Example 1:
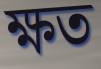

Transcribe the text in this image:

ক্ষত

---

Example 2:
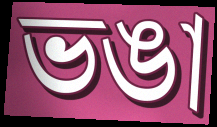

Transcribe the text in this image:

ভঙা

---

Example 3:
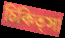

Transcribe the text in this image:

চিকিত্সা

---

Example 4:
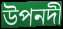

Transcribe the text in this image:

উপনদী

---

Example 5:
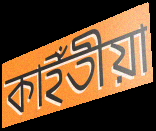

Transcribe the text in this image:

কাইঁতীয়া